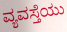
ವ್ಯವಸ್ತೆಯು